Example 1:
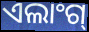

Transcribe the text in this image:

ଏଲାଂଗ୍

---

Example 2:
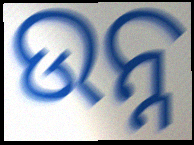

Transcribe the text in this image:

ଉନ୍ନ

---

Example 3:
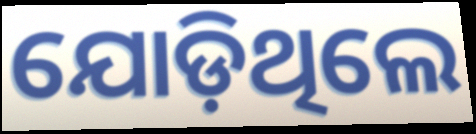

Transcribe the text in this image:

ଯୋଡ଼ିଥିଲେ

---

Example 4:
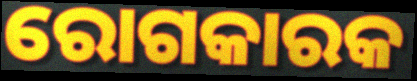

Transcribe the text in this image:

ରୋଗକାରକ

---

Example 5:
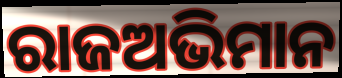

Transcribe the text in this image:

ରାଜଅଭିମାନ